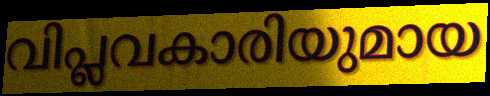
വിപ്ലവകാരിയുമായ